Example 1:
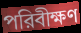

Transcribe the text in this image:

পরিবীক্ষণ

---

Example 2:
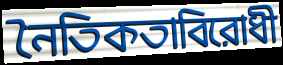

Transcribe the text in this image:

নৈতিকতাবিরোধী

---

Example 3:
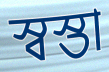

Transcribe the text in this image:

স্বস্তা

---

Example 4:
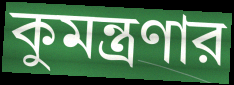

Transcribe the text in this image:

কুমন্ত্রণার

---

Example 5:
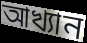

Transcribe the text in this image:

আখ্যান